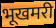
भूखमरी